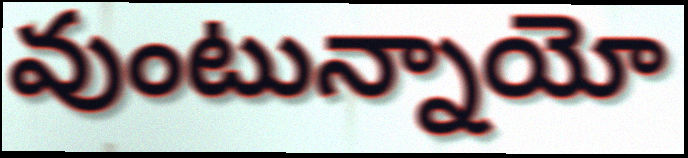
వుంటున్నాయో